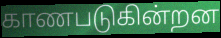
காணபடுகின்றன